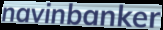
navinbanker